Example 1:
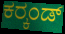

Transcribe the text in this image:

ಕರ್‍ಕಂಡ್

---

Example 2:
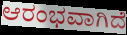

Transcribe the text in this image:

ಆರಂಭವಾಗಿದೆ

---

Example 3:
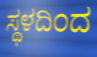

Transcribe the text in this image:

ಸ್ಥಳದಿಂದ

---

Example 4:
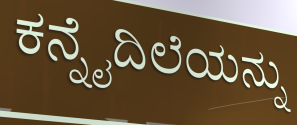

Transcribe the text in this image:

ಕನ್ನೈದಿಲೆಯನ್ನು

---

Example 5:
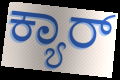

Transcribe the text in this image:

ಕ್ಯಾರ್